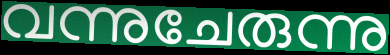
വന്നുചേരുന്നു